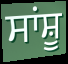
ਸਾਂਸ਼ੂ